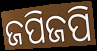
ଜପିଜପି